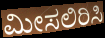
ಮೀಸಲಿರಿಸಿ